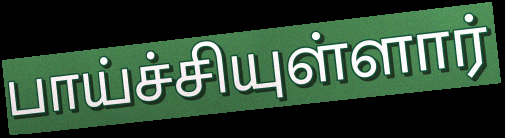
பாய்ச்சியுள்ளார்